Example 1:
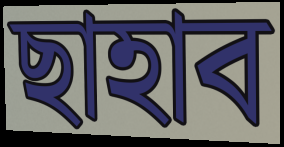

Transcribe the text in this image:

ছাহাব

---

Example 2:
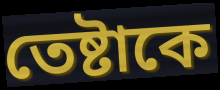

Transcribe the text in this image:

তেষ্টাকে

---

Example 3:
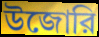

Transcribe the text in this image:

উজোরি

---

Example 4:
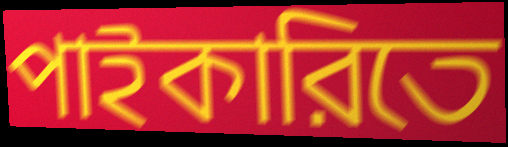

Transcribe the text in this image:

পাইকারিতে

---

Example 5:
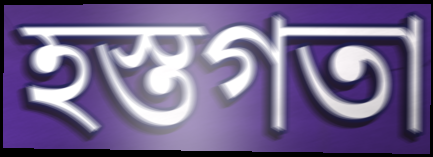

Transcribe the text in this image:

হস্তগতা